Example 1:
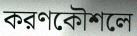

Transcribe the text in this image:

করণকৌশলে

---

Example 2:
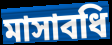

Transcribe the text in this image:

মাসাবধি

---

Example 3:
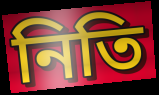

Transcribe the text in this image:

নিতি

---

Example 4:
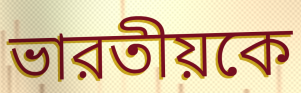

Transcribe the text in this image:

ভারতীয়কে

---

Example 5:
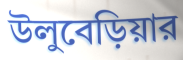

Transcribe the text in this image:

উলুবেড়িয়ার